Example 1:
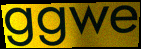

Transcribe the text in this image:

ggwe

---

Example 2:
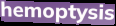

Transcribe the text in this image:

hemoptysis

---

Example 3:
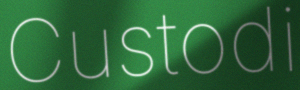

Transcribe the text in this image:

Custodi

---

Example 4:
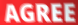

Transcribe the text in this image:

AGREE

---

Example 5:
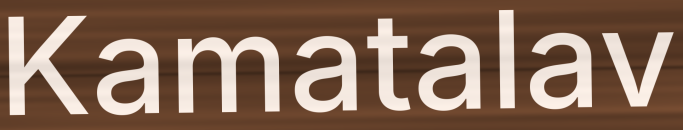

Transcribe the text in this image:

Kamatalav